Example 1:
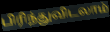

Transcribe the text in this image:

பிரிந்துவிடலாம்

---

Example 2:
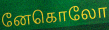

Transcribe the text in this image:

னேகொலோ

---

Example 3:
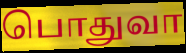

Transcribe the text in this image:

பொதுவா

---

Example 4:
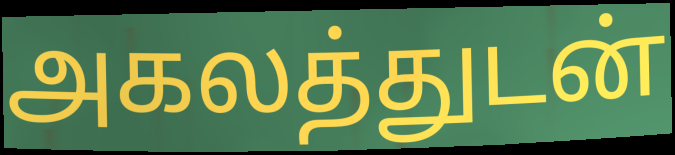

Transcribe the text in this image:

அகலத்துடன்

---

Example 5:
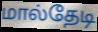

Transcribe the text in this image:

மால்தேடி